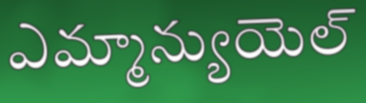
ఎమ్మాన్యుయెల్